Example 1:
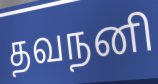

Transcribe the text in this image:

தவநனி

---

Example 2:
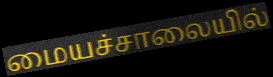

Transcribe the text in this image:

மையச்சாலையில்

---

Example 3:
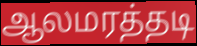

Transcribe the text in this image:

ஆலமரத்தடி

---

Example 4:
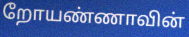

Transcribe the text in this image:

றோயண்ணாவின்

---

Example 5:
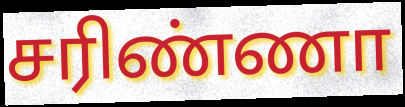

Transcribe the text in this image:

சரிண்ணா